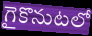
గైకొనుటలో